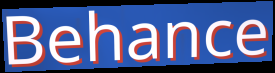
Behance